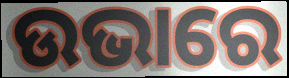
ଉଭାରେ